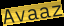
Avaaz